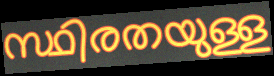
സ്ഥിരതയുള്ള